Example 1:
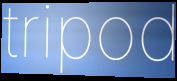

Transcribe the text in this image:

tripod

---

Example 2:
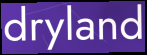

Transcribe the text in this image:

dryland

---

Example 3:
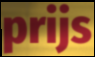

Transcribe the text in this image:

prijs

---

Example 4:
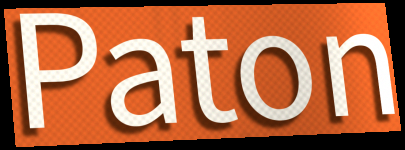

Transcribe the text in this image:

Paton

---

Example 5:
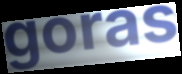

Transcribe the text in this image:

goras